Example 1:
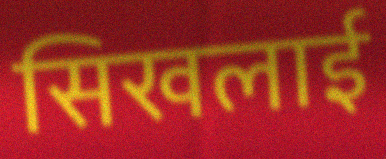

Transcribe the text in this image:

सिखलाई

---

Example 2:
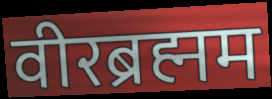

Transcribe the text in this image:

वीरब्रह्मम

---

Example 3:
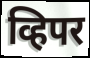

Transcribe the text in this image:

व्हिपर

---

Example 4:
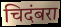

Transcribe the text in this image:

चिदंबरा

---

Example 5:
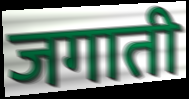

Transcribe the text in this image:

जगाती